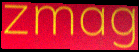
zmag